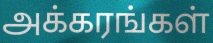
அக்கரங்கள்